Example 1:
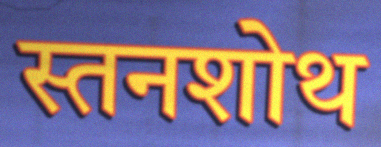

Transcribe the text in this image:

स्तनशोथ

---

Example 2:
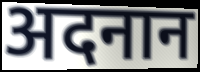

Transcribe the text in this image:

अदनान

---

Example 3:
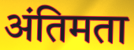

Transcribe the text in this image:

अंतिमता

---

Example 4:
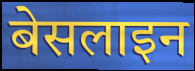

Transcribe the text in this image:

बेसलाइन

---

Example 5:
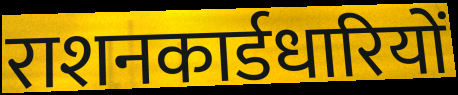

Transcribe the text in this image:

राशनकार्डधारियों